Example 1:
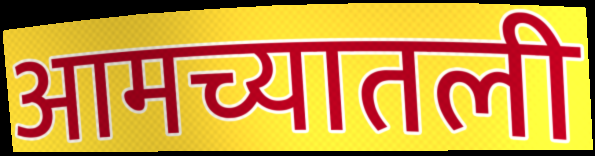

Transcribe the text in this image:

आमच्यातली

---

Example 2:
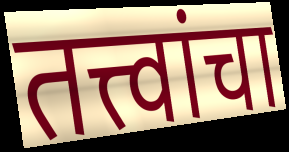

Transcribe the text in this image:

तत्त्वांचा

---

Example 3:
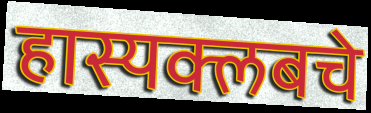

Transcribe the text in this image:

हास्यक्लबचे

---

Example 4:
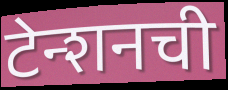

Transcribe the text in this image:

टेन्शनची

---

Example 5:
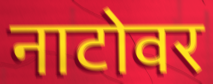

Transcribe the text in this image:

नाटोवर